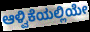
ಆಳ್ವಿಕೆಯಲ್ಲಿಯೇ